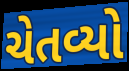
ચેતવ્યો